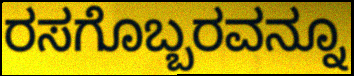
ರಸಗೊಬ್ಬರವನ್ನೂ